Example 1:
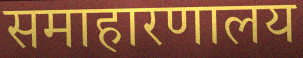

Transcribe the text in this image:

समाहारणालय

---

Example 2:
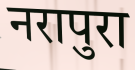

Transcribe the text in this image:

नरापुरा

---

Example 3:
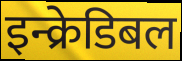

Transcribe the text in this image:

इन्क्रेडिबल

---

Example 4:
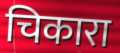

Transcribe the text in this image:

चिकारा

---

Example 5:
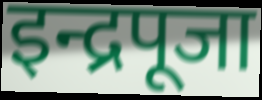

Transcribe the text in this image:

इन्द्रपूजा